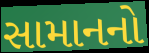
સામાનનો